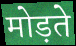
मोड़ते